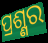
ପ୍ରଶ୍ଣର